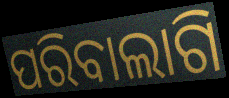
ପରିବାଲାଗି